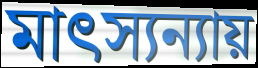
মাৎস্যন্যায়